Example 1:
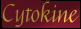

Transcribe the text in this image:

Cytokine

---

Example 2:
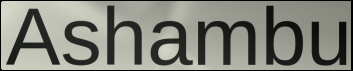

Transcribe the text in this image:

Ashambu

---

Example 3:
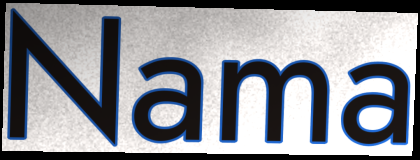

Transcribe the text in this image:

Nama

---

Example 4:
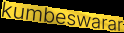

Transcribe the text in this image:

kumbeswarar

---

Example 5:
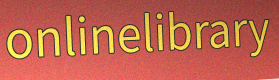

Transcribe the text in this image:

onlinelibrary